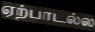
ஏற்பாடல்ல